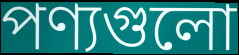
পণ্যগুলো